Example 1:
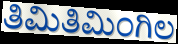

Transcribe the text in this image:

ತಿಮಿತಿಮಿಂಗಿಲ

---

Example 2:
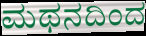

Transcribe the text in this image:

ಮಥನದಿಂದ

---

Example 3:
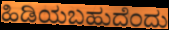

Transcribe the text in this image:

ಹಿಡಿಯಬಹುದೆಂದು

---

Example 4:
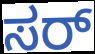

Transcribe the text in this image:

ಸರ್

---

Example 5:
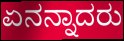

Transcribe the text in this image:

ಏನನ್ನಾದರು